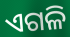
ଏଗଳି